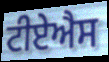
ਟੀਏਐਸ